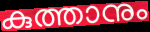
കുത്താനും